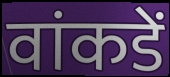
वांकडें